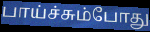
பாய்ச்சும்போது